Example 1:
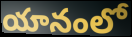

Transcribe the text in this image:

యానంలో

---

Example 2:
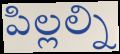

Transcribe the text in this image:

పిల్లల్ని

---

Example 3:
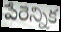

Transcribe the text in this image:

పేరెన్నిక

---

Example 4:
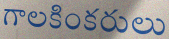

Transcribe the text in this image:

గాలకింకరులు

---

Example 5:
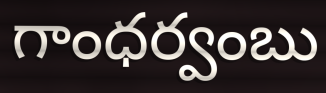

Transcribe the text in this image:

గాంధర్వంబు